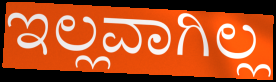
ಇಲ್ಲವಾಗಿಲ್ಲ